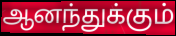
ஆனந்துக்கும்